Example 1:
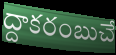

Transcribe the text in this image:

ద్దాకరంబుచే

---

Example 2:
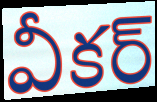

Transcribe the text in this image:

వీకర్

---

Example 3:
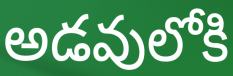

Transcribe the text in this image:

అడవులోకి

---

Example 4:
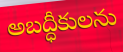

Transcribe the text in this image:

అబద్ధీకులను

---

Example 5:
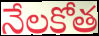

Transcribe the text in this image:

నేలకోత